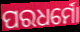
ପରଧର୍ମୋ